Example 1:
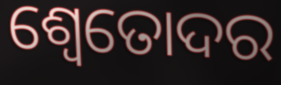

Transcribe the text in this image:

ଶ୍ୱେତୋଦର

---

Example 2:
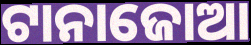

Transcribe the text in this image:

ଟାନାଜୋଆ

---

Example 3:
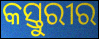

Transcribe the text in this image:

କସ୍ତୁରୀର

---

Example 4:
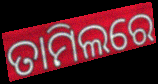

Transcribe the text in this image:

ତାମିଲରେ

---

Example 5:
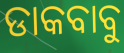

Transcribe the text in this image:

ଡାକବାବୁ